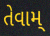
તેવામ્